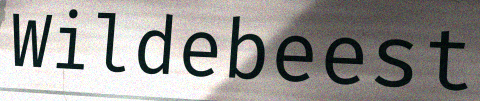
Wildebeest